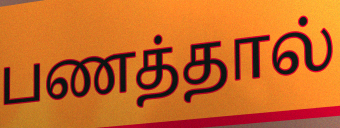
பணத்தால்